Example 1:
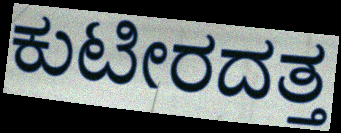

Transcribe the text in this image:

ಕುಟೀರದತ್ತ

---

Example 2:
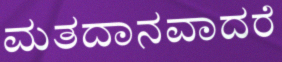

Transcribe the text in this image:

ಮತದಾನವಾದರೆ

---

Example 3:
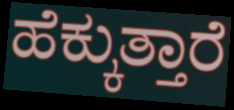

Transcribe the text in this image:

ಹೆಕ್ಕುತ್ತಾರೆ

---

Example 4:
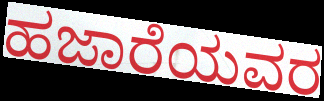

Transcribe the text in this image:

ಹಜಾರೆಯವರ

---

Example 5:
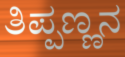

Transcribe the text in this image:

ತಿಪ್ಪಣ್ಣನ